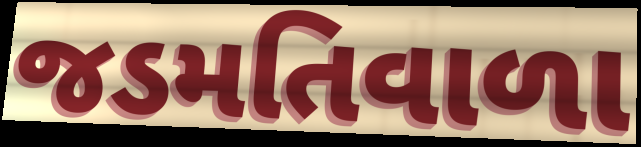
જડમતિવાળા